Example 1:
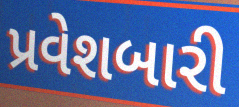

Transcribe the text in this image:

પ્રવેશબારી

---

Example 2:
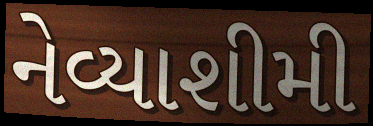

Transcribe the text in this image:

નેવ્યાશીમી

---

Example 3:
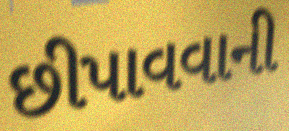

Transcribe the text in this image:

છીપાવવાની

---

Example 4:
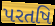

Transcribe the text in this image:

પરતષિ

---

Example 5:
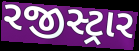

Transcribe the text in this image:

રજીસ્ટ્રાર